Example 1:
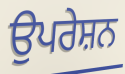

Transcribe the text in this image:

ਉਪਰੇਸ਼ਨ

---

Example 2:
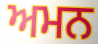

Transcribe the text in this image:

ਅਮਨ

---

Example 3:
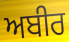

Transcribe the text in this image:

ਅਬੀਰ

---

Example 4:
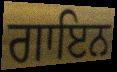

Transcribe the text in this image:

ਗਾਇਨ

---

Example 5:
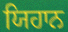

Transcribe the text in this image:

ਯਿਹਾਨ